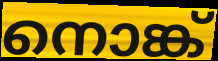
നൊങ്ക്